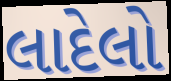
લાદેલો